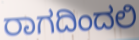
ರಾಗದಿಂದಲಿ